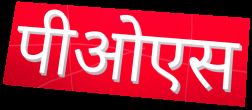
पीओएस